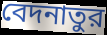
বেদনাতুর